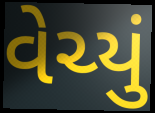
વેચ્યું